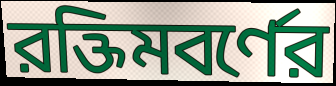
রক্তিমবর্ণের